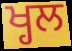
ਖ੍ਹਲ